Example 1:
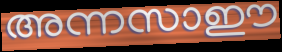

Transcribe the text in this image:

അന്നസാഈ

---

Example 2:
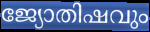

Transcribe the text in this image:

ജ്യോതിഷവും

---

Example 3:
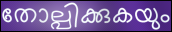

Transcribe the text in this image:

തോല്പിക്കുകയും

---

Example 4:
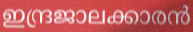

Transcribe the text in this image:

ഇന്ദ്രജാലക്കാരൻ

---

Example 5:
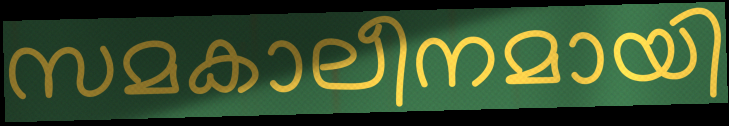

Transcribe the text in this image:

സമകാലീനമായി